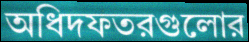
অধিদফতরগুলোর